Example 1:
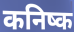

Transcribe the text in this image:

कनिष्क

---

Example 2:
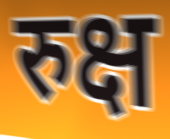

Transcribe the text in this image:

रुक्ष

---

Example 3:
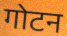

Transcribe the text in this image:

गोटन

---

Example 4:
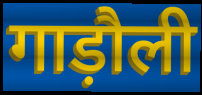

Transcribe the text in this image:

गाड़ौली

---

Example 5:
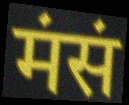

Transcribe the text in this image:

मंसं